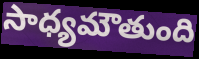
సాధ్యమౌతుంది